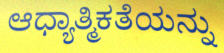
ಆಧ್ಯಾತ್ಮಿಕತೆಯನ್ನು